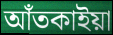
আঁতকাইয়া